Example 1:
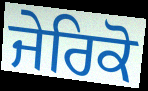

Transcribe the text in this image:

ਜੇਰਿਕੋ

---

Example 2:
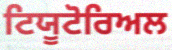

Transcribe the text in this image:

ਟਿਯੂਟੋਰਿਅਲ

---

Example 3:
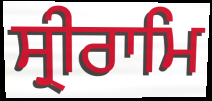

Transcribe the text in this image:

ਸ੍ਰੀਰਾਮਿ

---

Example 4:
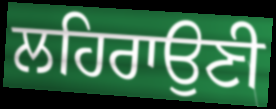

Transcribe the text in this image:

ਲਹਿਰਾਉਣੀ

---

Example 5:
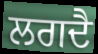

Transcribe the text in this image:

ਲਗਦੈ